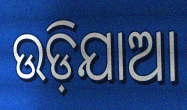
ଉଡ଼ିଯାଆ